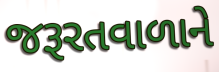
જરૂરતવાળાને